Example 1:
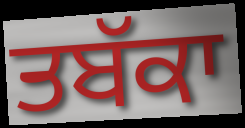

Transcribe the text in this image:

ਤਬੱਕਾ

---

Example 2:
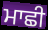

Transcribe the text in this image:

ਮਾਛੀ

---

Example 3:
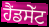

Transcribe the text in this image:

ਹੈਂਡਸੇੱਟ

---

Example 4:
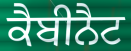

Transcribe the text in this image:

ਕੈਬੀਨੈਟ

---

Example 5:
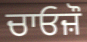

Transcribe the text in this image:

ਚਾਓਜ਼ੌ